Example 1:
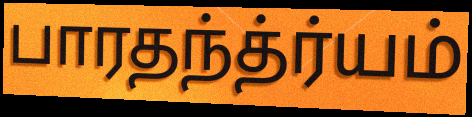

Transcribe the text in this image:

பாரதந்த்ர்யம்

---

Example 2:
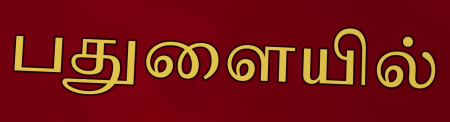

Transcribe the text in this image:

பதுளையில்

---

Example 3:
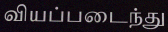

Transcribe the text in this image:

வியப்படைந்து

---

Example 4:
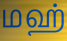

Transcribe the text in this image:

மஹ்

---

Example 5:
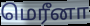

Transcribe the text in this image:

மெரீனா